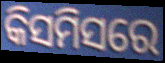
କିସମିସରେ